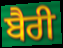
ਬੈਰੀ